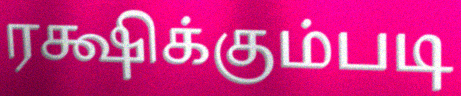
ரக்ஷிக்கும்படி